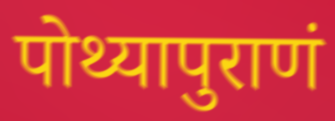
पोथ्यापुराणं